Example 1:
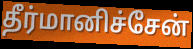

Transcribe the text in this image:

தீர்மானிச்சேன்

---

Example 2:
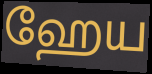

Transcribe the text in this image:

ஹேய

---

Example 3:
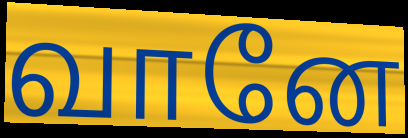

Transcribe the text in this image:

வானே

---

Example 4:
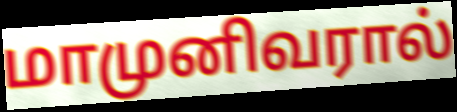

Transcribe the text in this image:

மாமுனிவரால்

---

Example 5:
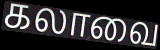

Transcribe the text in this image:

கலாவை